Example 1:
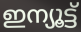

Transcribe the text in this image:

ഇന്യൂട്ട്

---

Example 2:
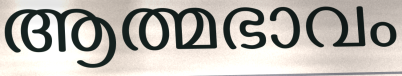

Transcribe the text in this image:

ആത്മഭാവം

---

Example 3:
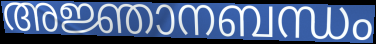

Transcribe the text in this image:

അജ്ഞാനബന്ധം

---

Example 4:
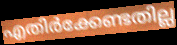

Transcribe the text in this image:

എതിർക്കേണ്ടതില്ല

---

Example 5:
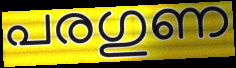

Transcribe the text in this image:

പരഗുണ